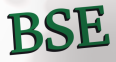
BSE